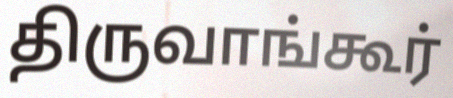
திருவாங்கூர்